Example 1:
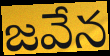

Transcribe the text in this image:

జవేన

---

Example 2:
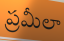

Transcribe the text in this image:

ప్రమీలా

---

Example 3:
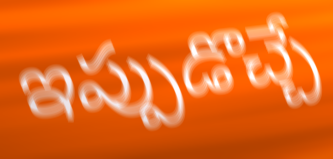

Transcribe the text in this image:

ఇప్పుడొచ్చే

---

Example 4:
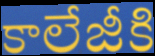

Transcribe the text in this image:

కాలేజీకి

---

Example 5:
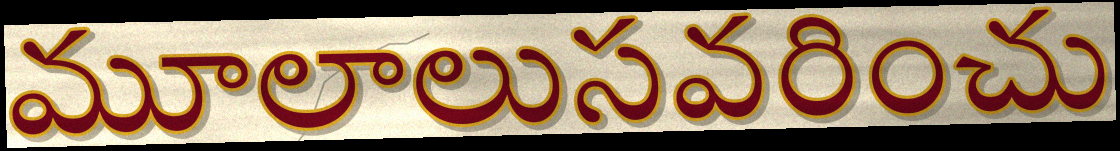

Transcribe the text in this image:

మూలాలుసవరించు